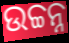
ଉଚ୍ଚନ୍ନ